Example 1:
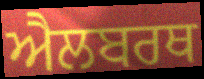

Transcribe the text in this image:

ਐਲਬਰਥ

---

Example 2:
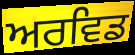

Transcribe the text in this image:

ਅਰਵਿਡ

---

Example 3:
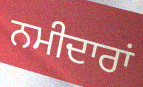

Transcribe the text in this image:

ਨਮੀਦਾਰਾਂ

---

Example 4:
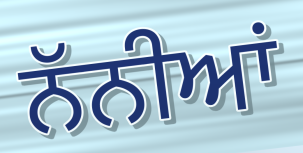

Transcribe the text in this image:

ਨੱਨੀਆਂ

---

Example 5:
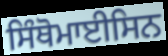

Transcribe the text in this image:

ਸਿੰਥੋਮਾਈਸਿਨ